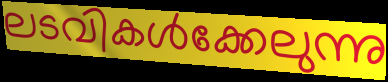
ലടവികൾക്കേലുന്നു